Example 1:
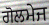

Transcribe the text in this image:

ਗੋਲਮੇਜ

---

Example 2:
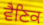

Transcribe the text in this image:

ਵੈਣਿਕ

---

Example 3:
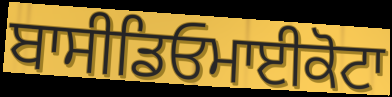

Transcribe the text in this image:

ਬਾਸੀਡਿਓਮਾਈਕੋਟਾ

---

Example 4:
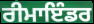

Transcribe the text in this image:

ਰੀਮਾਇੰਡਰ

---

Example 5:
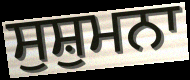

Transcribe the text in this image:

ਸੁਸ਼ੁਮਨਾ